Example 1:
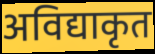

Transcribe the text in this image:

अविद्याकृत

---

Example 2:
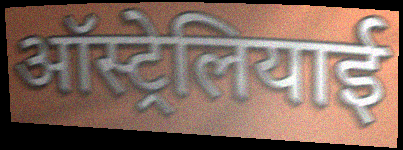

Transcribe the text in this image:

ऑस्ट्रेलियाई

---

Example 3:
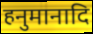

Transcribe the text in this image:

हनुमानादि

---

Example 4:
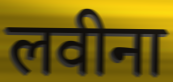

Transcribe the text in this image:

लवीना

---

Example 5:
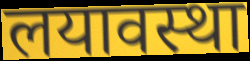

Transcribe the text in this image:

लयावस्था